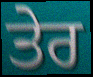
ਤੇਰ